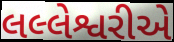
લલ્લેશ્વરીએ